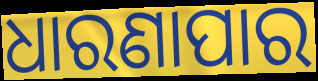
ଧାରଣାପାର